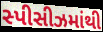
સ્પીસીઝમાંથી